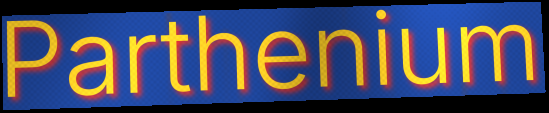
Parthenium